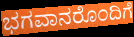
ಭಗವಾನರೊಂದಿಗೆ